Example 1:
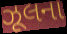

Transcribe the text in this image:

ઝૂલના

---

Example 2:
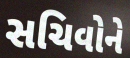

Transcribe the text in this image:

સચિવોને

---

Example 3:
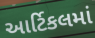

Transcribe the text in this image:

આર્ટિકલમાં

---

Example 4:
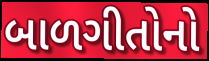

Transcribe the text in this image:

બાળગીતોનો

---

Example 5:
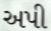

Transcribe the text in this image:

અપી